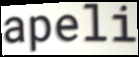
apeli